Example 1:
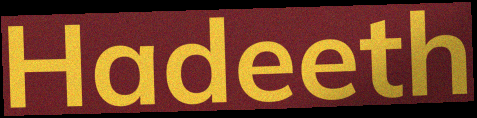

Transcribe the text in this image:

Hadeeth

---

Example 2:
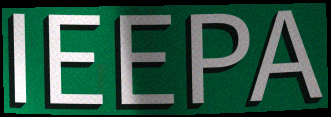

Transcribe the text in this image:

IEEPA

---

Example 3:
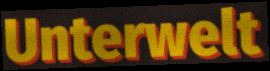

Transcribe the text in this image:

Unterwelt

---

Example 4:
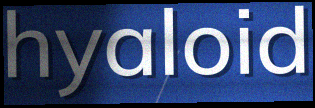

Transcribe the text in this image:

hyaloid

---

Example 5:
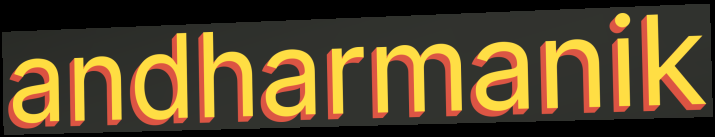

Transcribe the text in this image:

andharmanik